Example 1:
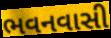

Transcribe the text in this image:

ભવનવાસી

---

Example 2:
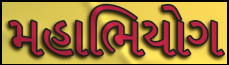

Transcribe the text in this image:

મહાભિયોગ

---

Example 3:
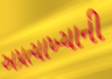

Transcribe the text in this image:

અપ્રત્યાખ્યાની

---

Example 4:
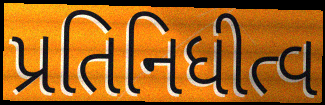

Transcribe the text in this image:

પ્રતિનિધીત્વ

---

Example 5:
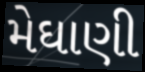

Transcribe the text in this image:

મેઘાણી